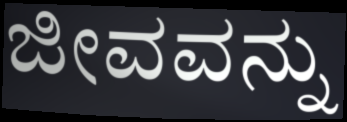
ಜೀವವನ್ನು